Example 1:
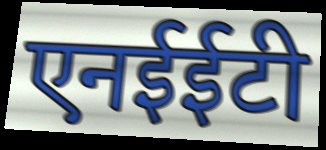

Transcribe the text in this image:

एनईईटी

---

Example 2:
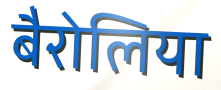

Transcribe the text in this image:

बैरोलिया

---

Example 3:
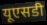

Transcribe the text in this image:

यूएसडी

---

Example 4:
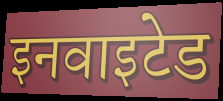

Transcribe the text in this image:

इनवाइटेड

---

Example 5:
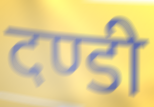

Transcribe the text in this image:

दण्डी